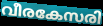
വീരകേസരി